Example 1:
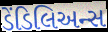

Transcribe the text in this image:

ડેંડિલિઅન્સ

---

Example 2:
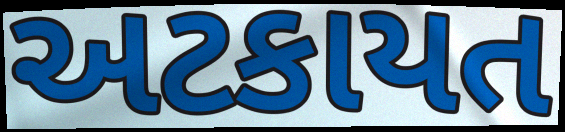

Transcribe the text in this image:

અટકાયત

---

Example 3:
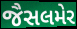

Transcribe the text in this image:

જૈસલમેર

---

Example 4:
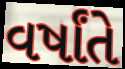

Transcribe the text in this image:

વર્ષાંતે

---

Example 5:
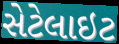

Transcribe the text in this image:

સેટેલાઇટ